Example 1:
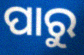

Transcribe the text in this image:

ପାରୁ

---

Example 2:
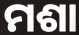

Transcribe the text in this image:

ମଶା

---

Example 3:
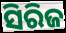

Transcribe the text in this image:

ସିରିଜ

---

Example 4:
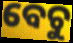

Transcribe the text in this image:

ବେଚୁ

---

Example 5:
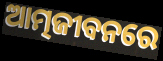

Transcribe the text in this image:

ଆତ୍ମଜୀବନରେ